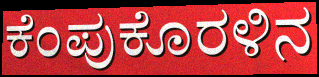
ಕೆಂಪುಕೊರಳಿನ